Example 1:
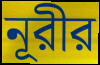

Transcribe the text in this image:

নূরীর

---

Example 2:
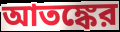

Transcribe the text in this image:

আতঙ্কের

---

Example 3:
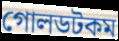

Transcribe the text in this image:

গোলডটকম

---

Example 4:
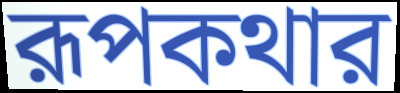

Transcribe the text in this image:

রূপকথার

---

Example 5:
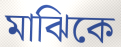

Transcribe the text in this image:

মাঝিকে